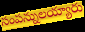
సంపన్నులయ్యారు